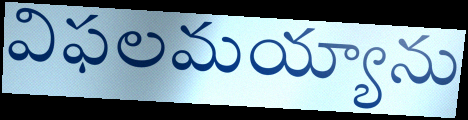
విఫలమయ్యాను